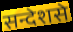
सन्देशसे